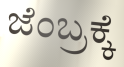
ಜೆಂಬ್ರಕ್ಕೆ